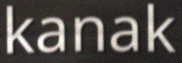
kanak